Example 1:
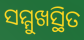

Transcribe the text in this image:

ସମ୍ମୁଖସ୍ଥିତ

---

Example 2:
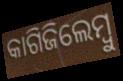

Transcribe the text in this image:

କାଗିଜିଲେମ୍ବୁ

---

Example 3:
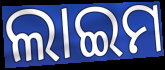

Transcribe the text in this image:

ଲାଇମ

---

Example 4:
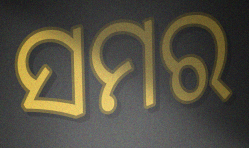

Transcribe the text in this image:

ସମର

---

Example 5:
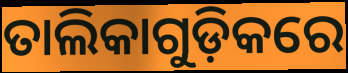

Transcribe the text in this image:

ତାଲିକାଗୁଡ଼ିକରେ